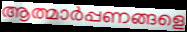
ആത്മാർപ്പണങ്ങളെ